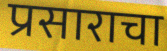
प्रसाराचा